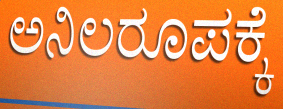
ಅನಿಲರೂಪಕ್ಕೆ